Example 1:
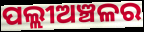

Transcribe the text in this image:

ପଲ୍ଲୀଅଞ୍ଚଳର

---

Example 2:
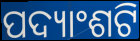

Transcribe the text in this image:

ପଦ୍ୟାଂଶଟି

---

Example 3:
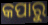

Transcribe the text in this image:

କପାରୁ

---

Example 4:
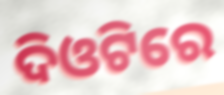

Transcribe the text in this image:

ଦିଓଟିରେ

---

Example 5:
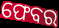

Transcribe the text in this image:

ଫେବର